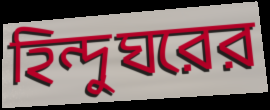
হিন্দুঘরের